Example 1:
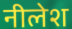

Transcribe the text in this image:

नीलेश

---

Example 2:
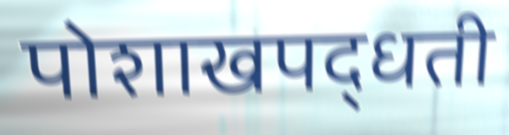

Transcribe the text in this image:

पोशाखपद्धती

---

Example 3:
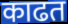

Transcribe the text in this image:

काढत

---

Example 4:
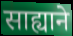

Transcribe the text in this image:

साह्याने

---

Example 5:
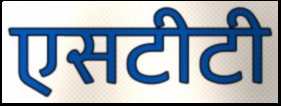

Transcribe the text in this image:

एसटीटी